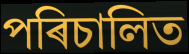
পৰিচালিত